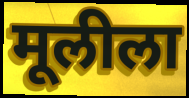
मूलीला